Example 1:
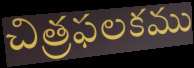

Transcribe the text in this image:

చిత్రఫలకము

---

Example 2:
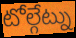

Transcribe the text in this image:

టోల్గేట్ను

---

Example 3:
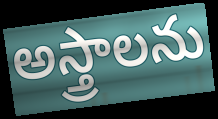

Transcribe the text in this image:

అస్త్రాలను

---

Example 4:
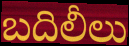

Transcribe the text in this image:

బదిలీలు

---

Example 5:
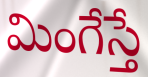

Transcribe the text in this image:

మింగేస్తే